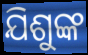
ଯିଶୁଙ୍କ